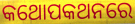
କଥୋପକଥନରେ